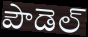
పౌడెల్